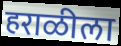
हराळीला